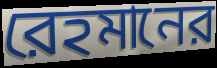
রেহমানের